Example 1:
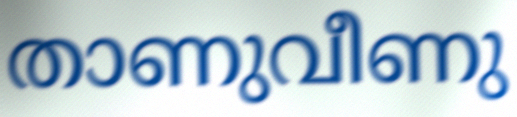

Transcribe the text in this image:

താണുവീണു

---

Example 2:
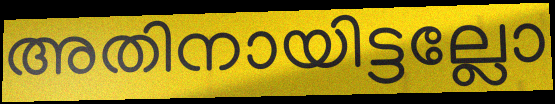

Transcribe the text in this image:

അതിനായിട്ടല്ലോ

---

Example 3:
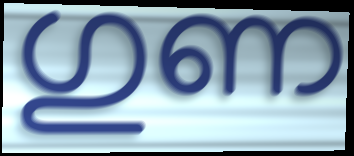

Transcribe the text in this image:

ഗുണ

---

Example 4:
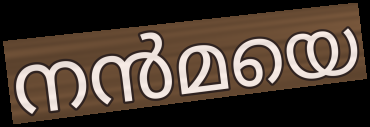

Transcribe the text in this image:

നൻമയെ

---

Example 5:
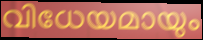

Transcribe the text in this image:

വിധേയമായും